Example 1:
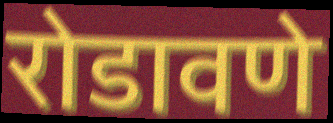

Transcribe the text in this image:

रोडावणे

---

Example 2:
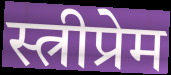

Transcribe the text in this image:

स्त्रीप्रेम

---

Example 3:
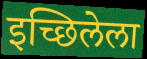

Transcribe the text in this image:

इच्छिलेला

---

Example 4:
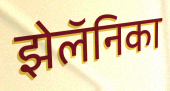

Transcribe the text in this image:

झेलॅनिका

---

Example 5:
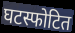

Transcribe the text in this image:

घटस्फोटित